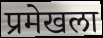
प्रमेखला